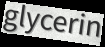
glycerin